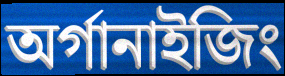
অর্গানাইজিং